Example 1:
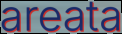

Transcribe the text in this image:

areata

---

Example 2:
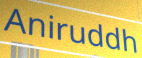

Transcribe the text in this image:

Aniruddh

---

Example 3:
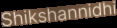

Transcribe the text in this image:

Shikshannidhi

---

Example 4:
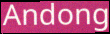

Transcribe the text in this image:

Andong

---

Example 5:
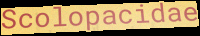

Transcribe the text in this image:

Scolopacidae